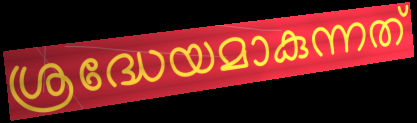
ശ്രദ്ധേയമാകുന്നത്